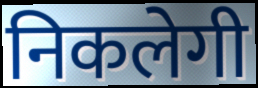
निकलेगी